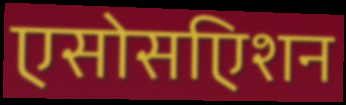
एसोसएिशन